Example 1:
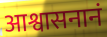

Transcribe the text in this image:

आश्वासनानं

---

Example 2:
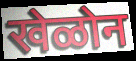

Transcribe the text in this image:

खेळोन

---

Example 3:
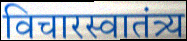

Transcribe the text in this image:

विचारस्वातंत्र्य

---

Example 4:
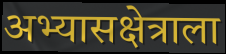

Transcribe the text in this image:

अभ्यासक्षेत्राला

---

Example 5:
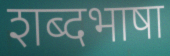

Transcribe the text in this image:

शब्दभाषा